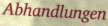
Abhandlungen